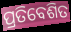
ପ୍ରତିବେଶିତ